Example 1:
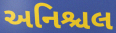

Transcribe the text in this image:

અનિશ્ચલ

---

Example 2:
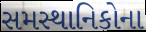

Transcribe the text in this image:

સમસ્થાનિકોના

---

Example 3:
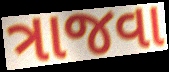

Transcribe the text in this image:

ત્રાજવા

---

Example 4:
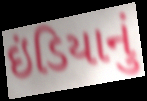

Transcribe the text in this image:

ઇંડિયાનું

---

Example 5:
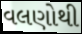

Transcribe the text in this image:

વલણોથી